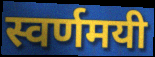
स्वर्णमयी